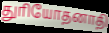
துரியோதனாதி